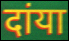
दांया